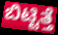
ಬಿಟ್ಟಿತ್ತೆ